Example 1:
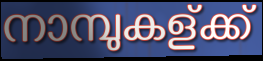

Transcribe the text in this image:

നാമ്പുകള്ക്ക്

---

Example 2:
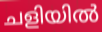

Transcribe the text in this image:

ചളിയിൽ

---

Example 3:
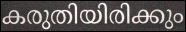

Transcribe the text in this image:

കരുതിയിരിക്കും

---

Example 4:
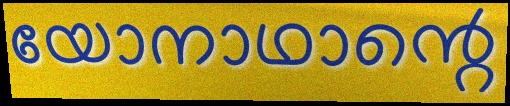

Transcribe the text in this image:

യോനാഥാന്റെ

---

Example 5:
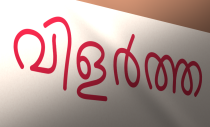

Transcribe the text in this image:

വിളർത്ത